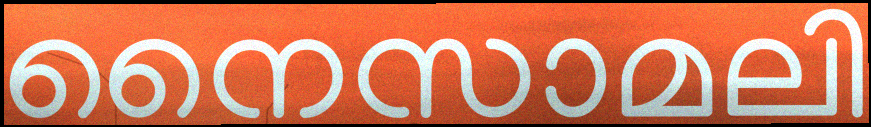
നൈസാമലി